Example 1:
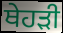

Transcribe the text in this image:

ਥੇਹੜੀ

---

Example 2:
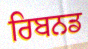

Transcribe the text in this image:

ਰਿਬਨਡ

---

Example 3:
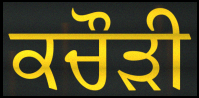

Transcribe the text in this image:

ਕਚੌੜੀ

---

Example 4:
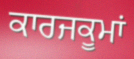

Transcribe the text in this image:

ਕਾਰਜਕੂਮਾਂ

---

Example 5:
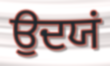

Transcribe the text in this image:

ਉਦਯਂ